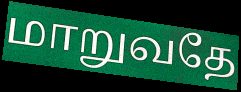
மாறுவதே